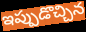
ఇప్పుడొచ్చిన